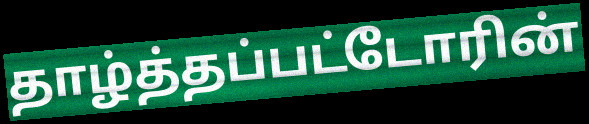
தாழ்த்தப்பட்டோரின்